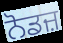
ਨੋਡਜ਼